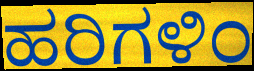
ಹರಿಗಳಿಂ